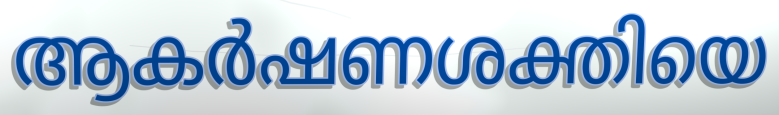
ആകർഷണശക്തിയെ